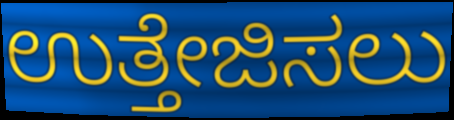
ಉತ್ತೇಜಿಸಲು